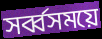
সর্ব্বসময়ে